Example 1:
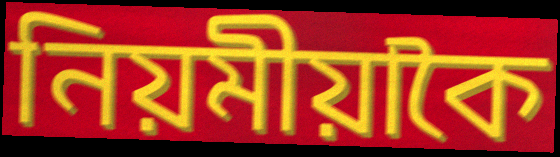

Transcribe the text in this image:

নিয়মীয়াকৈ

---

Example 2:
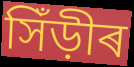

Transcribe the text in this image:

সিঁড়ীৰ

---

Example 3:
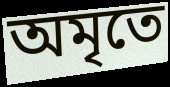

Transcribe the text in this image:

অমৃতে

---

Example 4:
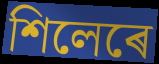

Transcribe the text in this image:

শিলেৰে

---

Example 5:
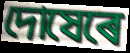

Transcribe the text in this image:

দোষেৰে